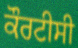
ਕੌਰਟੀਸੀ